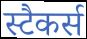
स्टैकर्स